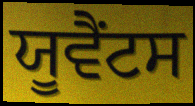
ਯੂਵੈਂਟਸ